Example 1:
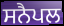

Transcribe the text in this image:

ਸਨੈਪਲ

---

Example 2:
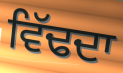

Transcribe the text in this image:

ਵਿੱਢਦਾ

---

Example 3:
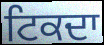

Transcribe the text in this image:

ਟਿਕਦਾ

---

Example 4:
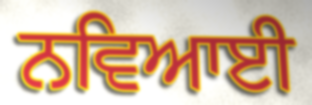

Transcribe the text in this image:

ਨਵਿਆਈ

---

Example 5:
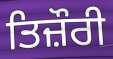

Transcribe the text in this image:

ਤਿਜ਼ੌਰੀ